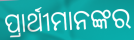
ପ୍ରାର୍ଥୀମାନଙ୍କର